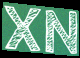
XN